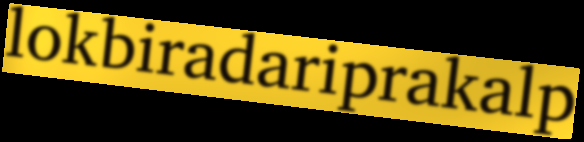
lokbiradariprakalp